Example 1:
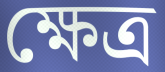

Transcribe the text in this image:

ক্ষেত্র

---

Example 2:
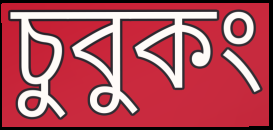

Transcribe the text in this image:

চুবুকং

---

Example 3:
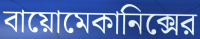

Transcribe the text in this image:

বায়োমেকানিক্সের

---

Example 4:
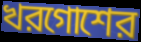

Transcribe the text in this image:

খরগোশের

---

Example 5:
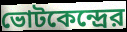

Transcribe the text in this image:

ভোটকেন্দ্রের